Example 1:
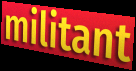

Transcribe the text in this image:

militant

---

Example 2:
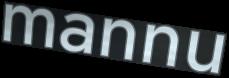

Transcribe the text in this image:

mannu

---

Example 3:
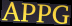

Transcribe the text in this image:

APPG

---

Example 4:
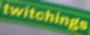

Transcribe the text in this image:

twitchings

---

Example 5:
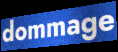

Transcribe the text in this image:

dommage